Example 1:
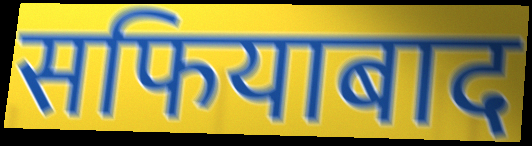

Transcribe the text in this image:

सफियाबाद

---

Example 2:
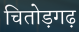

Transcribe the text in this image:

चितोड़गढ़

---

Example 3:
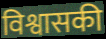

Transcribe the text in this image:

विश्वासकी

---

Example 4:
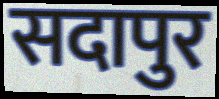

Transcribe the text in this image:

सदापुर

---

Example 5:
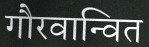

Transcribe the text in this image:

गौरवान्वित